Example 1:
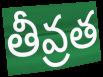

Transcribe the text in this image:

తీవ్రత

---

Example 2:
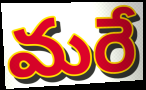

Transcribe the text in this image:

మరే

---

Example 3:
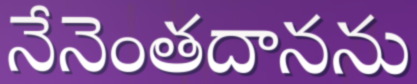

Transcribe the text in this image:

నేనెంతదానను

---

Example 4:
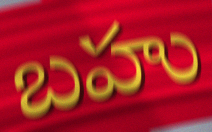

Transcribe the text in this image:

బహు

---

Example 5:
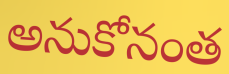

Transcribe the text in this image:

అనుకోనంత